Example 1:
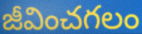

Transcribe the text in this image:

జీవించగలం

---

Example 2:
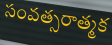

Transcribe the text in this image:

సంవత్సరాత్మక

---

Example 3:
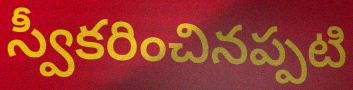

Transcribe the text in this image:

స్వీకరించినప్పటి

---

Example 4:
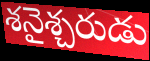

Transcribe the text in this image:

శనైశ్చరుడు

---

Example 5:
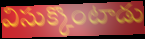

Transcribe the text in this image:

విసుక్కొంటాడు